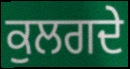
ਕੁਲਗਦੇ